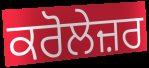
ਕਰੋਲੇਜ਼ਰ